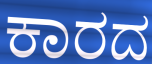
ಕಾರದ